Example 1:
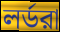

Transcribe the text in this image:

লর্ডরা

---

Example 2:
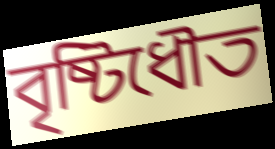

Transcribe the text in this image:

বৃষ্টিধৌত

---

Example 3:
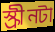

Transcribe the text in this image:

স্ক্রীনটা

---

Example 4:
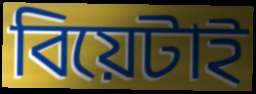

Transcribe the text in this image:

বিয়েটাই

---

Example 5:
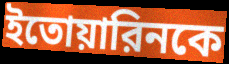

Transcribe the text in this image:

ইতোয়ারিনকে